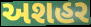
અશહર